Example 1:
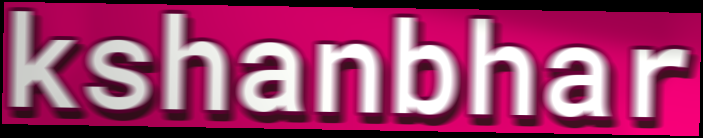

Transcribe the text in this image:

kshanbhar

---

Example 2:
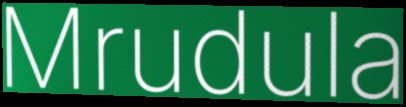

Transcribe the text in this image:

Mrudula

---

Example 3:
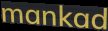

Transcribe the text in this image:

mankad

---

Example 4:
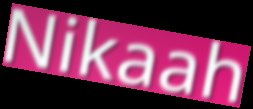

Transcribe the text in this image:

Nikaah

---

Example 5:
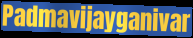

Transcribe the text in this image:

Padmavijayganivar